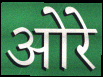
ओरे